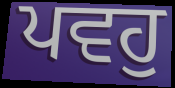
ਪਵਹੁ